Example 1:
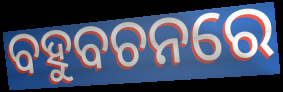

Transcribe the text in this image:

ବହୁବଚନରେ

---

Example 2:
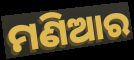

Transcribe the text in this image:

ମଣିଆର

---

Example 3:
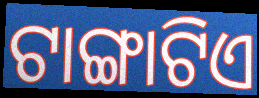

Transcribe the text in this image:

ଟାଙ୍ଗାଟିଏ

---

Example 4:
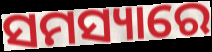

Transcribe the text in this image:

ସମସ୍ୟାରେ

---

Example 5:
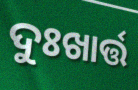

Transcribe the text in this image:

ଦୁଃଖାର୍ତ୍ତ